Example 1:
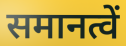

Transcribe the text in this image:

समानत्वें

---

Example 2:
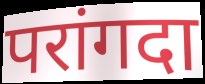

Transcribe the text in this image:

परांगदा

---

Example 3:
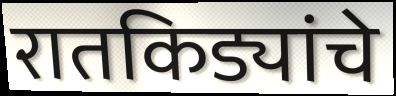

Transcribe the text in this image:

रातकिड्यांचे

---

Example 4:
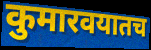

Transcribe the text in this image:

कुमारवयातच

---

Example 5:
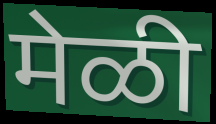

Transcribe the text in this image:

मेळी